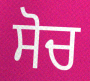
ਸੋਚ